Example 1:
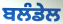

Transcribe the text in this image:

ਬਲੰਡੇਲ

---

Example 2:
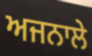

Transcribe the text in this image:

ਅਜਨਾਲੇ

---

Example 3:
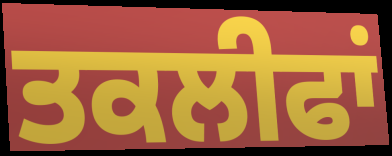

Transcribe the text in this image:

ਤਕਲੀਫਾਂ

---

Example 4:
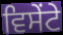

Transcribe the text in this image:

ਵਿਸੇਂਟੇ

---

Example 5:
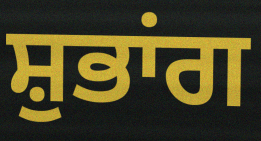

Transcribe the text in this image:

ਸ਼ੁਭਾਂਗ